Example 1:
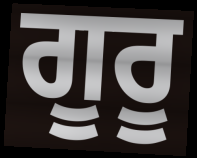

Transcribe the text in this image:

ਗੂਰੂ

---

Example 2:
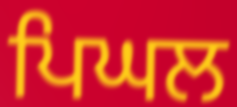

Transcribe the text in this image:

ਪਿਘਲ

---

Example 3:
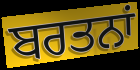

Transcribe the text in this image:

ਬਰਤਨਾਂ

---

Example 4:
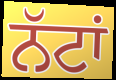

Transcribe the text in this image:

ਨੱਟਾਂ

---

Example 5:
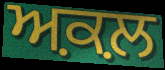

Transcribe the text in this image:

ਅ਼ਕ਼ਲ